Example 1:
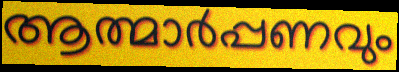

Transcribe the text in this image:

ആത്മാർപ്പണവും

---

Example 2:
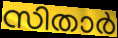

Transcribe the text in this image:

സിതാർ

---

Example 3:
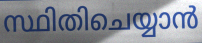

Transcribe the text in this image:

സ്ഥിതിചെയ്യാൻ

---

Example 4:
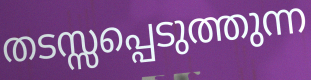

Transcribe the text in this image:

തടസ്സപ്പെടുത്തുന്ന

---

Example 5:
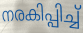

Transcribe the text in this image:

നരകിപ്പിച്ച്